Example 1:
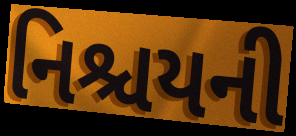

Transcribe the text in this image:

નિશ્ચયની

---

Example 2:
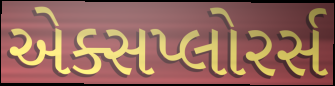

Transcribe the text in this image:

એક્સપ્લોરર્સ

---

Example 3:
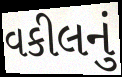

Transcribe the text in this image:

વકીલનું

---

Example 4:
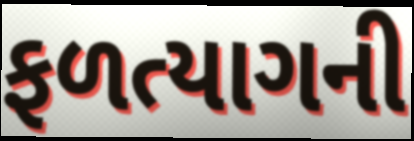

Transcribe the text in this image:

ફળત્યાગની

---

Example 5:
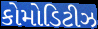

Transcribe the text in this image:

કોમોડિટીઝ